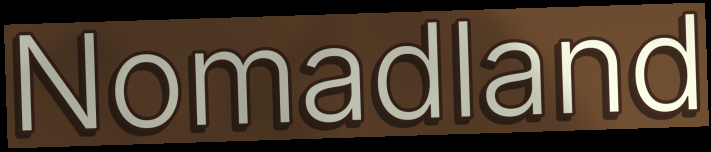
Nomadland